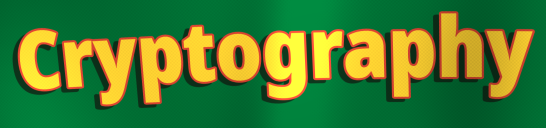
Cryptography